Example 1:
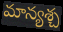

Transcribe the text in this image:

మాన్యశ్చ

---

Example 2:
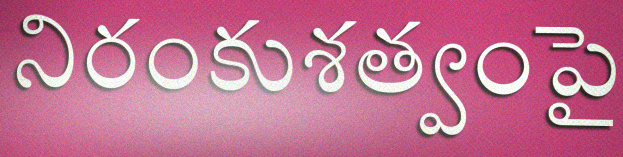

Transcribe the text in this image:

నిరంకుశత్వంపై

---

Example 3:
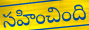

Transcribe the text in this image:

సహించింది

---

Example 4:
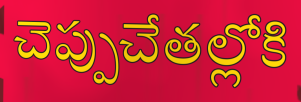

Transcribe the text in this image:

చెప్పుచేతల్లోకి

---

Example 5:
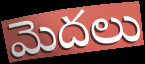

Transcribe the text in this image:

మెదలు